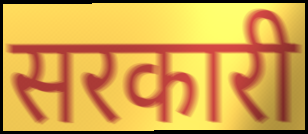
सरकारी